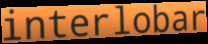
interlobar